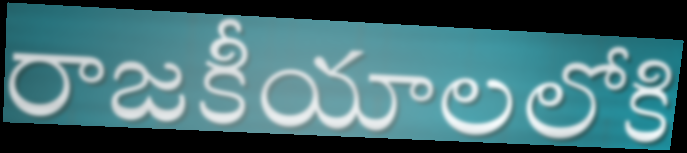
రాజకీయాలలోకి